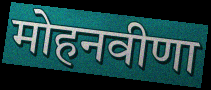
मोहनवीणा